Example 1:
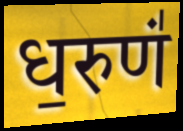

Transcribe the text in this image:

ध॒रुणं॑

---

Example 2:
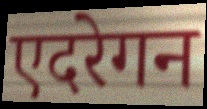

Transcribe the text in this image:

एदरेगन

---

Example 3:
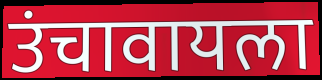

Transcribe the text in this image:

उंचावायला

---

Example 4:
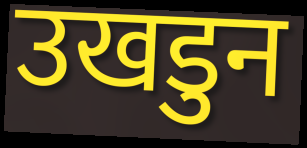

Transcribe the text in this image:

उखडुन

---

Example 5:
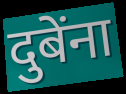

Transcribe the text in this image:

दुबेंना